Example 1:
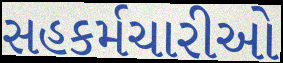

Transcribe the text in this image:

સહકર્મચારીઓ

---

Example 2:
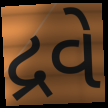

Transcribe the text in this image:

દ્રવે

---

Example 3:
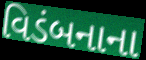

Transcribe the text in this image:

વિડંબનાના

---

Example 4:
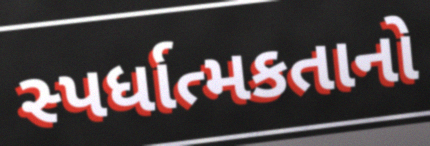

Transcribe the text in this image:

સ્પર્ધાત્મકતાનો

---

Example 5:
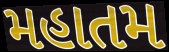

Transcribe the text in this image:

મહાતમ